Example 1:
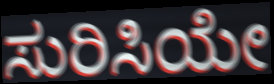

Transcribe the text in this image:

ಸುರಿಸಿಯೇ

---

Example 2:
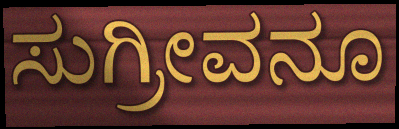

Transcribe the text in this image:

ಸುಗ್ರೀವನೂ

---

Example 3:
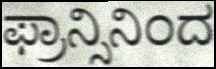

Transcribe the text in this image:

ಫ್ರಾನ್ಸಿನಿಂದ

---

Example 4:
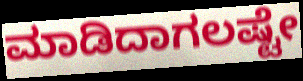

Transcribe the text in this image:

ಮಾಡಿದಾಗಲಷ್ಟೇ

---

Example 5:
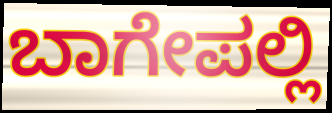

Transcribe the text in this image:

ಬಾಗೇಪಲ್ಲಿ